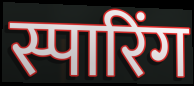
स्पारिंग